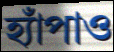
হ্যাঁপাও